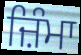
ਜ਼ਿੰਮਾ